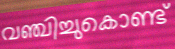
വഞ്ചിച്ചുകൊണ്ട്